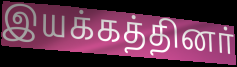
இயக்கத்தினர்